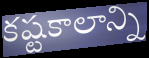
కష్టకాలాన్ని